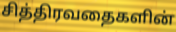
சித்திரவதைகளின்